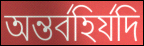
অন্তর্বহির্যদি